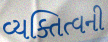
વ્યક્તિત્વની